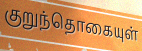
குறுந்தொகையுள்